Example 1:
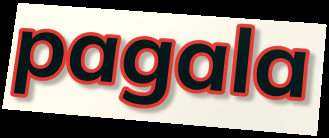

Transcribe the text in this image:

pagala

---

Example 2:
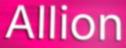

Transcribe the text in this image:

Allion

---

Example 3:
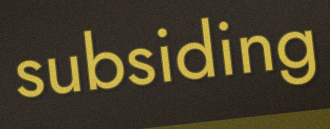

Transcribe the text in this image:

subsiding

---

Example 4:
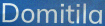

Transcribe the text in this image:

Domitila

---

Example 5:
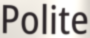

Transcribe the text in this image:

Polite